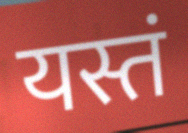
यस्तं